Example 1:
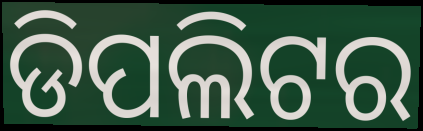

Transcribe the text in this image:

ଡିପଲିଟର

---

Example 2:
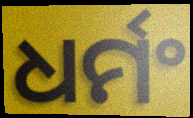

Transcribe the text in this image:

ଧର୍ମଂ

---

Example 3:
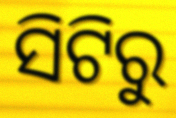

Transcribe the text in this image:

ସିଟିରୁ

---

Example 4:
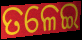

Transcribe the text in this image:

ତଳେଇ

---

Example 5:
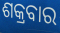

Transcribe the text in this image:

ଶକ୍ରବାର